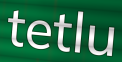
tetlu